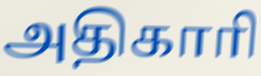
அதிகாரி